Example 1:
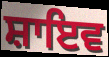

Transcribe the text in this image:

ਸ਼ਾਇਵ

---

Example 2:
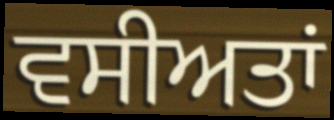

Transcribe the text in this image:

ਵਸੀਅਤਾਂ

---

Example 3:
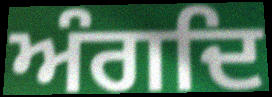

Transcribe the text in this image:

ਅੰਗਦਿ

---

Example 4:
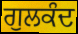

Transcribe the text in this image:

ਗੁਲਕੰਦ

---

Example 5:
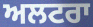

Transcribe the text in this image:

ਅਲਟਰਾ